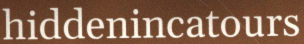
hiddenincatours